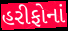
હરીફોનાં